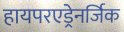
हायपरएड्रेनर्जिक